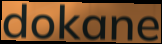
dokane